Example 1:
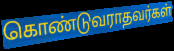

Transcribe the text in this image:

கொண்டுவராதவர்கள்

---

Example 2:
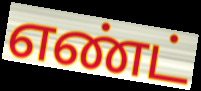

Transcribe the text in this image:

எண்ட்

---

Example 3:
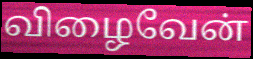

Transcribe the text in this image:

விழைவேன்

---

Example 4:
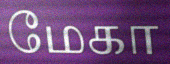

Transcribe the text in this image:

மேகா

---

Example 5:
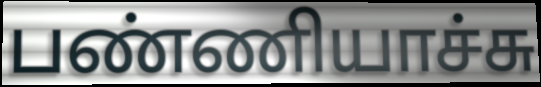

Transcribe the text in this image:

பண்ணியாச்சு